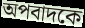
অপবাদকে